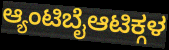
ಆ್ಯಂಟಿಬೈಆಟಿಕ್ಗಳ